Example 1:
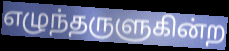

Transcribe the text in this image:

எழுந்தருளுகின்ற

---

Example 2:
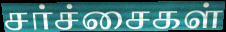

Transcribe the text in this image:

சர்ச்சைகள்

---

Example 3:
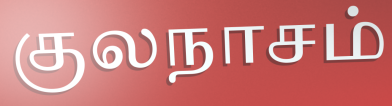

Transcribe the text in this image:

குலநாசம்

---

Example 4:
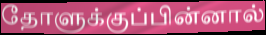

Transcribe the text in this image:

தோளுக்குப்பின்னால்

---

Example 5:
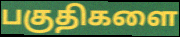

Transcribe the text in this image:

பகுதிகளை